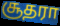
சூதரா